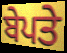
ਬੇਪਤੇ